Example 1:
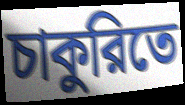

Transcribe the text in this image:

চাকুরিতে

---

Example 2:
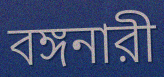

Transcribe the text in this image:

বঙ্গনারী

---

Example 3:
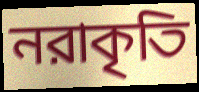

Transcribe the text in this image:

নরাকৃতি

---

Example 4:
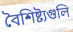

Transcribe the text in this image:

বৈশিষ্ট্যগুলি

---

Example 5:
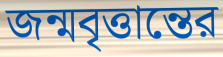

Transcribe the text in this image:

জন্মবৃত্তান্তের